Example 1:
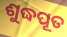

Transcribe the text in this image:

ଶୁଦ୍ଧପୂତ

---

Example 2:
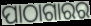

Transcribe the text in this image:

ପାଠାଗାରର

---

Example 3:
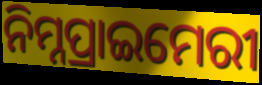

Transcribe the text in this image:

ନିମ୍ନପ୍ରାଇମେରୀ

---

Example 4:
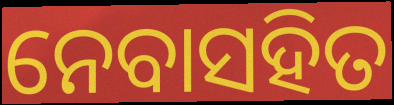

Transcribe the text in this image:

ନେବାସହିତ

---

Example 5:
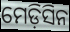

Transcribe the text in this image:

ମେଡ଼ିସିନ